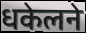
धकेलने